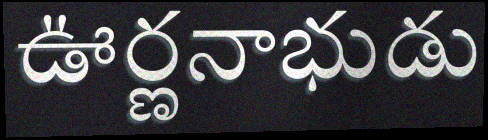
ఊర్ణనాభుడు